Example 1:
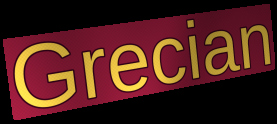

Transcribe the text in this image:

Grecian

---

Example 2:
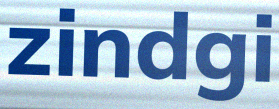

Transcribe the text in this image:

zindgi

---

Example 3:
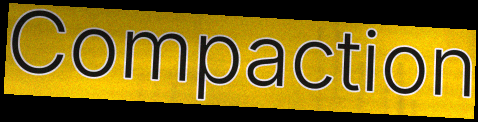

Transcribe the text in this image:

Compaction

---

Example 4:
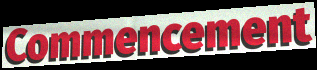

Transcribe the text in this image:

Commencement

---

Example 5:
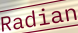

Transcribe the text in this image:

Radian